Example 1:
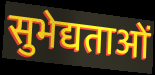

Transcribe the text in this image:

सुभेद्यताओं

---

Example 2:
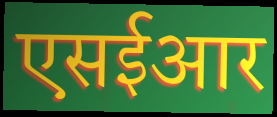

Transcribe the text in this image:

एसईआर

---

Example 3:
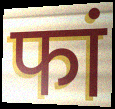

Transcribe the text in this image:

फां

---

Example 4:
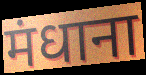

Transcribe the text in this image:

मंधाना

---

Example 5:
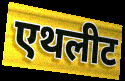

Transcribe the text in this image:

एथलीट